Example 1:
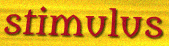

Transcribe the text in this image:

stimulus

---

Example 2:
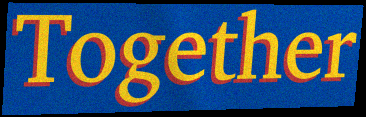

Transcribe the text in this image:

Together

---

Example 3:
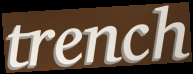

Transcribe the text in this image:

trench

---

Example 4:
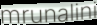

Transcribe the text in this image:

mrunalini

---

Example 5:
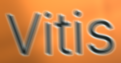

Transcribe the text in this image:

Vitis